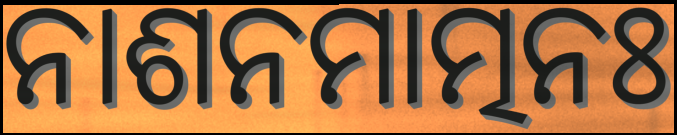
ନାଶନମାତ୍ମନଃ